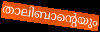
താലിബാന്റെയും